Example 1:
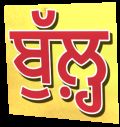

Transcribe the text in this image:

ਬੁੱਲ਼੍ਹ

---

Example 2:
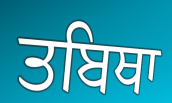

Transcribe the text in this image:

ਤਬਿਥਾ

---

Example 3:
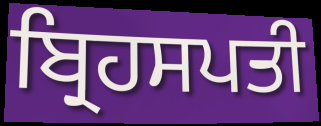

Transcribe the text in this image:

ਬ੍ਰਿਹਸਪਤੀ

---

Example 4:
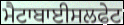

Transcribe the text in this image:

ਮੈਟਾਬਾਈਸਲਫੇਟ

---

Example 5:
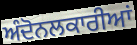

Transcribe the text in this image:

ਅੰਦੋਨਲਕਾਰੀਆਂ